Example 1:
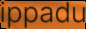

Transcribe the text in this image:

ippadu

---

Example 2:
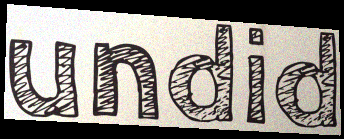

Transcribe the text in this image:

undid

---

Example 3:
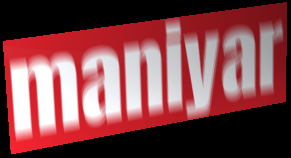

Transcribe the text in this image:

maniyar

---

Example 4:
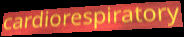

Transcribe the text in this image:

cardiorespiratory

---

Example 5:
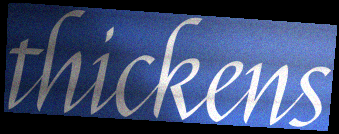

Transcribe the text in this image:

thickens